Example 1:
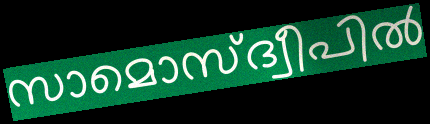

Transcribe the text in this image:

സാമൊസ്ദ്വീപിൽ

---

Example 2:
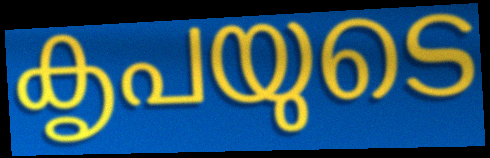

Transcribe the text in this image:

കൃപയുടെ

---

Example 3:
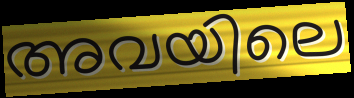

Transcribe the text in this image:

അവയിലെ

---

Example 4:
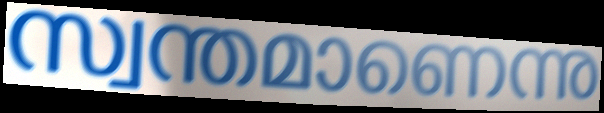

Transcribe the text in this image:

സ്വന്തമാണെന്നു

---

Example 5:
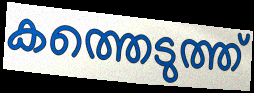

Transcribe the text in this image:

കത്തെടുത്ത്